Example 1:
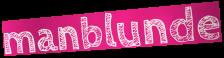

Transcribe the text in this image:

manblunde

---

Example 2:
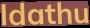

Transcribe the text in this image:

Idathu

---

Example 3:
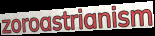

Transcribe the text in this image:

zoroastrianism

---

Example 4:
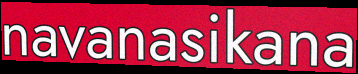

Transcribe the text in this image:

navanasikana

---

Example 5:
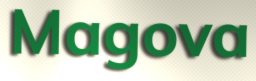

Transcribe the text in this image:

Magova